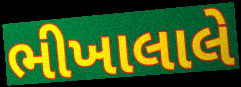
ભીખાલાલે